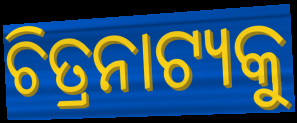
ଚିତ୍ରନାଟ୍ୟକୁ